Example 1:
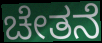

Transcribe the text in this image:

ಚೇತನೆ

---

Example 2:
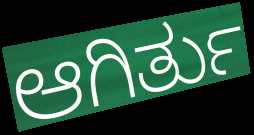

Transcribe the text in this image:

ಆಗಿರ್ತು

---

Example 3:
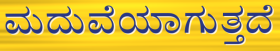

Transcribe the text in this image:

ಮದುವೆಯಾಗುತ್ತದೆ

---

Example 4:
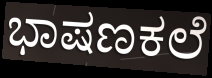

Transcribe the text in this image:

ಭಾಷಣಕಲೆ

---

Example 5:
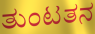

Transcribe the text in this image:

ತುಂಟತನ